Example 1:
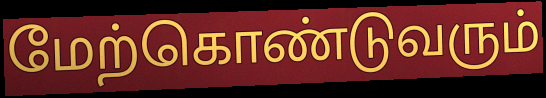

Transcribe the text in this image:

மேற்கொண்டுவரும்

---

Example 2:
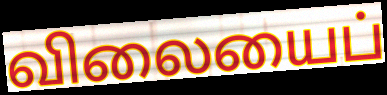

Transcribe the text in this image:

விலையைப்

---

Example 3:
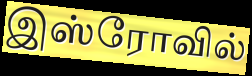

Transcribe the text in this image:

இஸ்ரோவில்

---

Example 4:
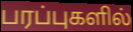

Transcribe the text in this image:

பரப்புகளில்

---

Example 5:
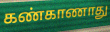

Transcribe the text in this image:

கண்காணாது